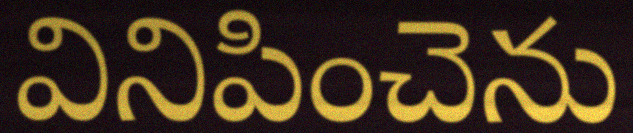
వినిపించెను